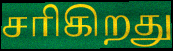
சரிகிறது